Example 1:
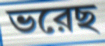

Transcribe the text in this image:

ভরেছ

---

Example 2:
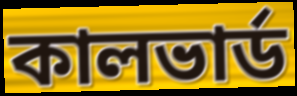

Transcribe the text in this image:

কালভার্ড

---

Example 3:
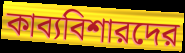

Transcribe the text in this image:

কাব্যবিশারদের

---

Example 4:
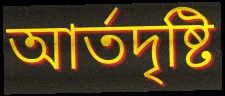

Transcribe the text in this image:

আর্তদৃষ্টি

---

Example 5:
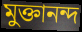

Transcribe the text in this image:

মুক্তানন্দ